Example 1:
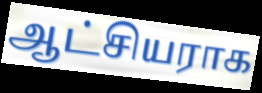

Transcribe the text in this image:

ஆட்சியராக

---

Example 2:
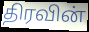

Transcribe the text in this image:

திரவின்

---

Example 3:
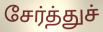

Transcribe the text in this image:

சேர்த்துச்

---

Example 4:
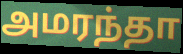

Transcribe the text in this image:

அமரந்தா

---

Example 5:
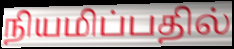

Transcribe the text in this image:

நியமிப்பதில்